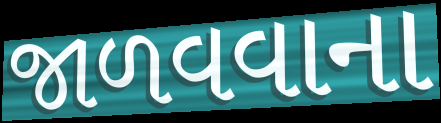
જાળવવાના